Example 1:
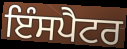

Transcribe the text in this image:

ਇੰਸਪੈਟਰ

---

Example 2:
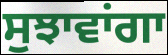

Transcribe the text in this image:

ਸੁਝਾਵਾਂਗਾ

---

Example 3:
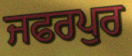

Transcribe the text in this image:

ਜਫਰਪੁਰ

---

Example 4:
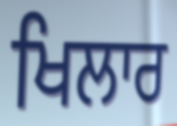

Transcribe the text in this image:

ਖਿਲਾਰ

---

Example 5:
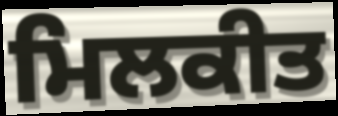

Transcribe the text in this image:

ਮਿਲਕੀਤ